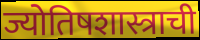
ज्योतिषशास्त्राची